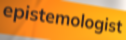
epistemologist